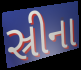
સ્રીના